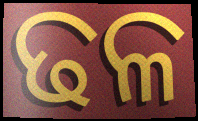
ଢଳ